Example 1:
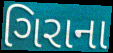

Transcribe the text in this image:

ગિરાના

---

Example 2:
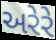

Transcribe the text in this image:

અરેરે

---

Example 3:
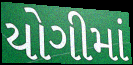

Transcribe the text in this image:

યોગીમાં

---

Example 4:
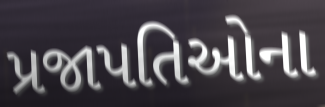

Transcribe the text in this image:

પ્રજાપતિઓના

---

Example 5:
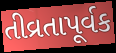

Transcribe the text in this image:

તીવ્રતાપૂર્વક